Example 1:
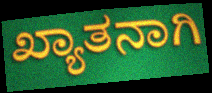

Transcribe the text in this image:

ಖ್ಯಾತನಾಗಿ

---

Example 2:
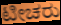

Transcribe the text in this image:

ಟೀಚರು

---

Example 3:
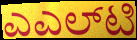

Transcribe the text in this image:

ಎಎಲ್‌ಟಿ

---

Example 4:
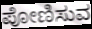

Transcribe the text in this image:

ಪೋಣಿಸುವ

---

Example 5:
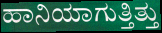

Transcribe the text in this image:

ಹಾನಿಯಾಗುತ್ತಿತ್ತು